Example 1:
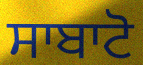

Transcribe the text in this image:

ਸਾਬਾਟੋ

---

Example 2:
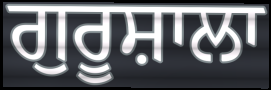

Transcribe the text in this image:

ਗੁਰੂਸ਼ਾਲਾ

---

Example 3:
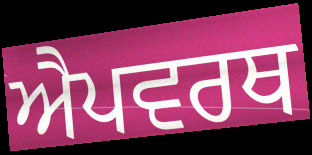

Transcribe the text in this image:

ਐਪਵਰਥ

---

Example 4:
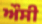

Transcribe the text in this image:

ਔਸੀ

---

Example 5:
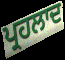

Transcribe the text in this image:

ਪ੍ਰਹਲਾਦ